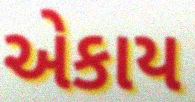
એકાય